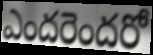
ఎందరెందరో